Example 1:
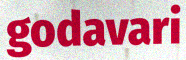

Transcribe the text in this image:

godavari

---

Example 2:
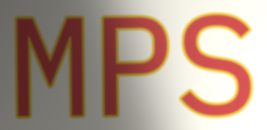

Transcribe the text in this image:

MPS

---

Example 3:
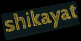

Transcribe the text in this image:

shikayat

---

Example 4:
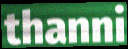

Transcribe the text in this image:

thanni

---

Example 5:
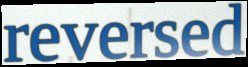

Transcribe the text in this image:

reversed